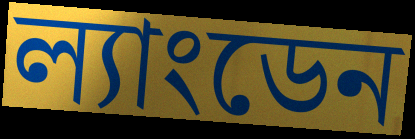
ল্যাংডেন